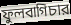
ফুলবাগিচার